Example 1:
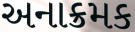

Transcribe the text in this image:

અનાક્રમક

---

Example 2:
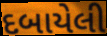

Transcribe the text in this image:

દબાયેલી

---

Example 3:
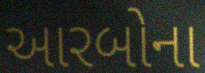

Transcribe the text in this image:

આરબોના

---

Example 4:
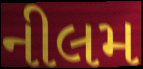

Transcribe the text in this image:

નીલમ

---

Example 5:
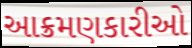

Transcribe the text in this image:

આક્રમણકારીઓ